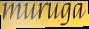
muruga